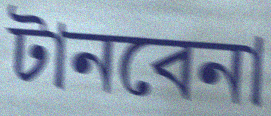
টানবেনা